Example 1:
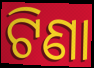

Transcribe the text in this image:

ଟିଣା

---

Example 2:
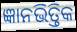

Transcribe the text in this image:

ଜ୍ଞାନଭିତ୍ତିକ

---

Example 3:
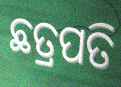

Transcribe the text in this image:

ଛତ୍ରପତି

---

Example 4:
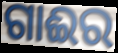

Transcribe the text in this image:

ଗାଈର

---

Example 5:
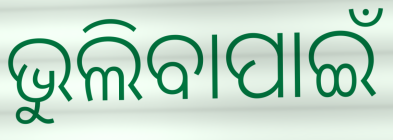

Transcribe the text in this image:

ଭୁଲିବାପାଇଁ